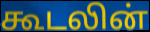
கூடலின்